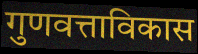
गुणवत्ताविकास